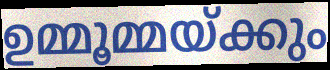
ഉമ്മൂമ്മയ്ക്കും